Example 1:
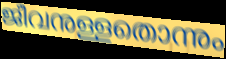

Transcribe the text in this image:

ജീവനുള്ളതൊന്നും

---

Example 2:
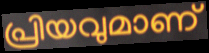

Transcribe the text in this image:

പ്രിയവുമാണ്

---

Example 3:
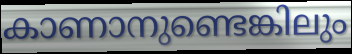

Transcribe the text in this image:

കാണാനുണ്ടെങ്കിലും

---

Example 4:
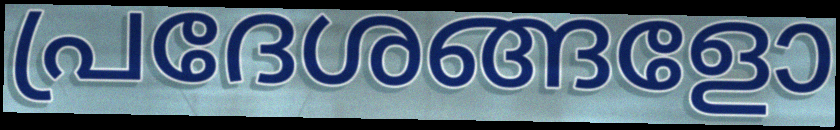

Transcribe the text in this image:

പ്രദേശങ്ങളോ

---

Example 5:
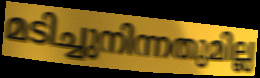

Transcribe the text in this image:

മടിച്ചുനിന്നതുമില്ല